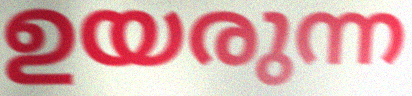
ഉയരുന്ന